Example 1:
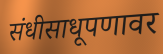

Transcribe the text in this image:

संधीसाधूपणावर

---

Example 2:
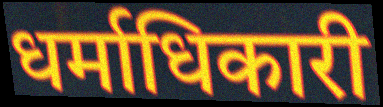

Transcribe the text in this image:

धर्माधिकारी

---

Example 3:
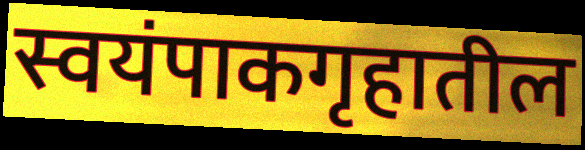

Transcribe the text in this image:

स्वयंपाकगृहातील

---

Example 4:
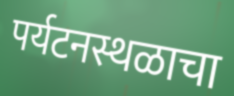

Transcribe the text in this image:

पर्यटनस्थळाचा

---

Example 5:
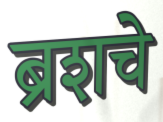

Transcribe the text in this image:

ब्रशचे